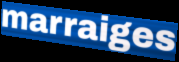
marraiges